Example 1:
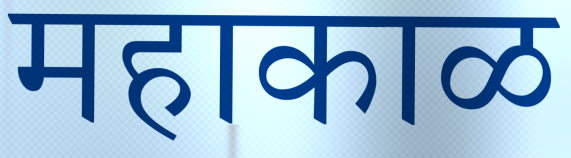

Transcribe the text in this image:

महाकाळ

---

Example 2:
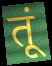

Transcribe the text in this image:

तूं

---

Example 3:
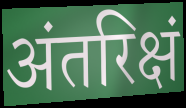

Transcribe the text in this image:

अंतरिक्षं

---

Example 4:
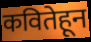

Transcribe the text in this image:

कवितेहून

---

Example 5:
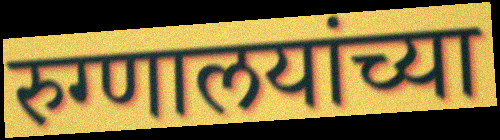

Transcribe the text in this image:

रुग्णालयांच्या